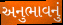
અનુભાવનું